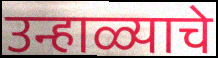
उन्हाळ्याचे